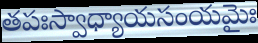
తపఃస్వాధ్యాయసంయమైః